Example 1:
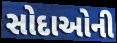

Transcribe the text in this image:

સોદાઓની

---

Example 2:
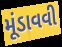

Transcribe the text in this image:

મૂંડાવવી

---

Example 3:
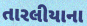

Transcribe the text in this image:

તારલીયાના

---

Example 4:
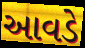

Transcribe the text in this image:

આવડે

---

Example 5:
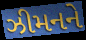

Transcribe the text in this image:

ઝીમનને